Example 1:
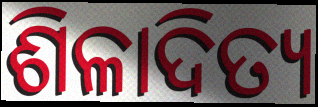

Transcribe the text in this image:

ଶିଳାଦିତ୍ୟ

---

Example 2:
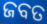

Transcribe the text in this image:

ଜବତ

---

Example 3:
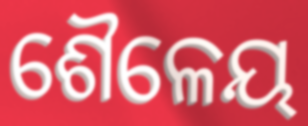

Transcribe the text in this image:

ଶୈଳେୟ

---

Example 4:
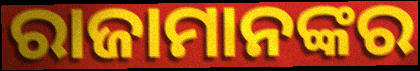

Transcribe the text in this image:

ରାଜାମାନଙ୍କର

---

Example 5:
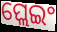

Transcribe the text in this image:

ପ୍ଲେଇଂ